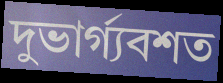
দুভার্গ্যবশত